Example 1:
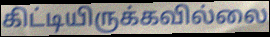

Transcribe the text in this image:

கிட்டியிருக்கவில்லை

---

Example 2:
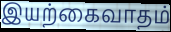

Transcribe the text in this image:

இயற்கைவாதம்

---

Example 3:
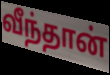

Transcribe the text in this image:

வீந்தான்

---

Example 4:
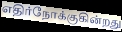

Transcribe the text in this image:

எதிர்நோக்குகின்றது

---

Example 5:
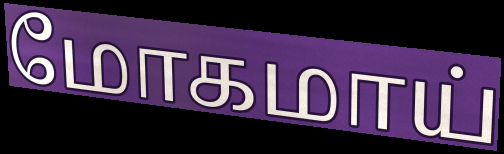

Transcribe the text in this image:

மோகமாய்